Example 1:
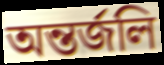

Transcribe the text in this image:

অন্তর্জলি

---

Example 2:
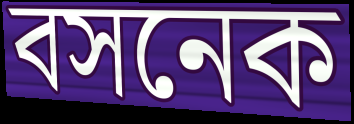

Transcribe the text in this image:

বসনেক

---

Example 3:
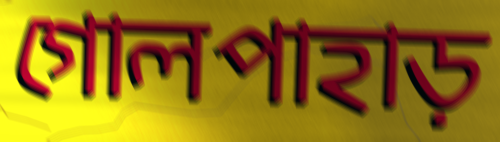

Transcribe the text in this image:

গোলপাহাড়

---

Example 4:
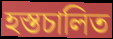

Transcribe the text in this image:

হস্তচালিত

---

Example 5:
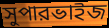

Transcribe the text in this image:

সুপারভাইজ